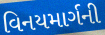
વિનયમાર્ગની